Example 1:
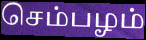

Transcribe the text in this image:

செம்பழம்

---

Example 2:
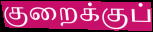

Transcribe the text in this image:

குறைக்குப்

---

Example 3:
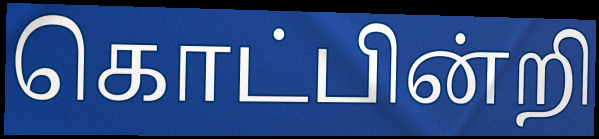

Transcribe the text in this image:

கொட்பின்றி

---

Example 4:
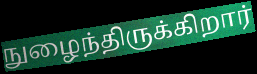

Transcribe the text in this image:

நுழைந்திருக்கிறார்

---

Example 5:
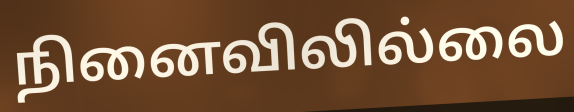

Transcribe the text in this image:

நினைவிலில்லை